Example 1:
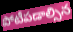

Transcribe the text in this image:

పోటీపడాల్సిన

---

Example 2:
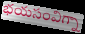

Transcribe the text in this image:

భయసంవిగ్నా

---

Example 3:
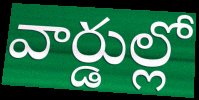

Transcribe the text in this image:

వార్డుల్లో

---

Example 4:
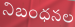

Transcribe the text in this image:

నిబంధనల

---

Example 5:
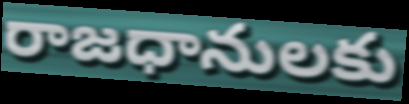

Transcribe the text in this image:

రాజధానులకు